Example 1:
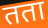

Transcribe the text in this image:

तता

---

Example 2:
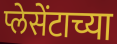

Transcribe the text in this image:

प्लेसेंटाच्या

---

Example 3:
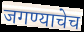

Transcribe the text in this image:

जगण्याचेच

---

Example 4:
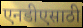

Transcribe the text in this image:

एनडीएसाठी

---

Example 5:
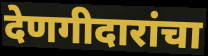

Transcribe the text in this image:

देणगीदारांचा